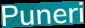
Puneri